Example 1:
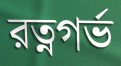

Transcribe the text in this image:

রত্নগর্ভ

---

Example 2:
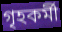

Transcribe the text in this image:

গৃহকর্মী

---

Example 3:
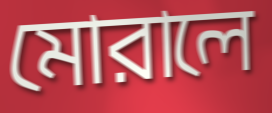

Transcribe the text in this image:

মোরালে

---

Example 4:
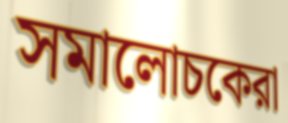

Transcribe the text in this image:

সমালোচকেরা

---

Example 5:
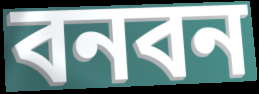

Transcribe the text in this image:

বনবন